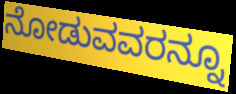
ನೋಡುವವರನ್ನೂ